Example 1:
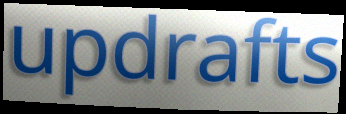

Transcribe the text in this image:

updrafts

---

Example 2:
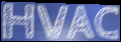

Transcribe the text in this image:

HVAC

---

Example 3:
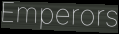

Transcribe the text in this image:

Emperors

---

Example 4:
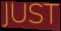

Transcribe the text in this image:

JUST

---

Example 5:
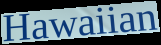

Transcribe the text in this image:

Hawaiian